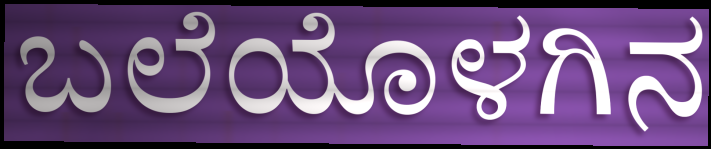
ಬಲೆಯೊಳಗಿನ